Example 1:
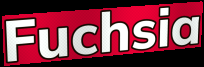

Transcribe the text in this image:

Fuchsia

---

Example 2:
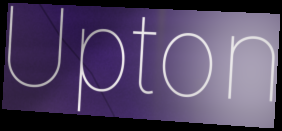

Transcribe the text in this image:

Upton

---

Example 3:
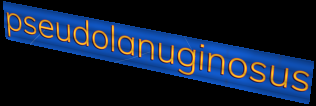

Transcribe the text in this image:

pseudolanuginosus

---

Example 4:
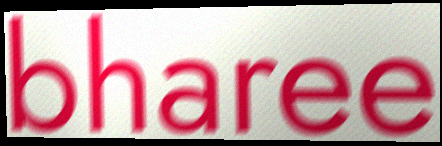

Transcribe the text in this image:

bharee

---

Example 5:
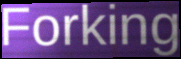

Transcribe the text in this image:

Forking